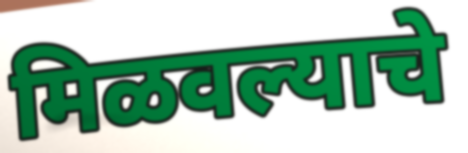
मिळवल्याचे